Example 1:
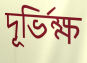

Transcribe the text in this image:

দূর্ভিক্ষ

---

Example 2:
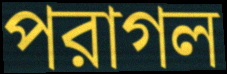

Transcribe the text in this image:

পরাগল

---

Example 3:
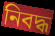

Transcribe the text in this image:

নিবদ্ধ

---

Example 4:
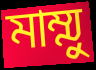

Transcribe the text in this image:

মাম্মু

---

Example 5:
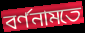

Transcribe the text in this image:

বর্ণনামতে